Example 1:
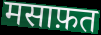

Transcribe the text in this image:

मसाफ़त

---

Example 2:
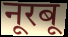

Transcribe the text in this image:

नूरबू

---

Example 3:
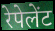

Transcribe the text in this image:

रेपेलेंट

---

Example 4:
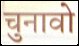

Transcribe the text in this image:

चुनावो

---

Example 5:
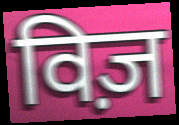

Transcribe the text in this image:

विज़